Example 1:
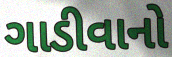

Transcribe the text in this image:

ગાડીવાનો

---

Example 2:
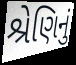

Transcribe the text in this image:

શ્રેણિનું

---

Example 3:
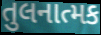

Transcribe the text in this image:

તુલનાત્મક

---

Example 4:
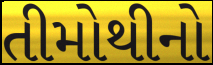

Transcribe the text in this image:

તીમોથીનો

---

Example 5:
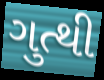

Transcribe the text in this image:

ગુત્થી